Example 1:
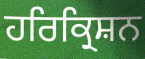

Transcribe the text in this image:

ਹਰਿਕ੍ਰਿਸ਼ਨ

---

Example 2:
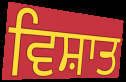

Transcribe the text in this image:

ਵਿਸ਼ਾਤ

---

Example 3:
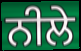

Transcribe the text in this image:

ਨੀਲੇ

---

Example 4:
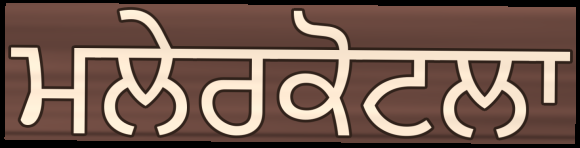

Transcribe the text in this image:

ਮਲੇਰਕੋਟਲਾ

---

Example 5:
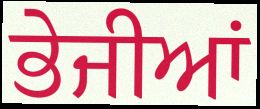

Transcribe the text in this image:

ਭੇਜੀਆਂ